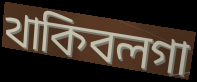
থাকিবলগা